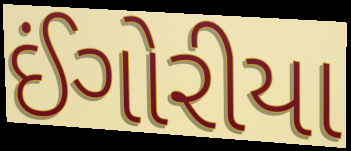
ઈંગોરીયા